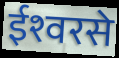
ईश्वरसे